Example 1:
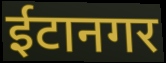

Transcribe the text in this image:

ईटानगर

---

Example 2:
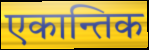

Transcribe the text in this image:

एकान्तिक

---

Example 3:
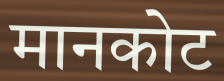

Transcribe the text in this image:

मानकोट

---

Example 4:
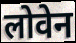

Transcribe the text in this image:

लोवेन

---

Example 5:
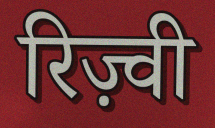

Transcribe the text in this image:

रिज़्वी